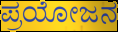
ಪ್ರಯೋಜನ